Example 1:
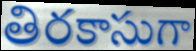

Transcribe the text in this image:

తిరకాసుగా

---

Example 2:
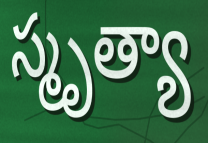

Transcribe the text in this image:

స్మృత్యా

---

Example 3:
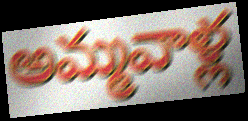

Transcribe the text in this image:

అమ్మవాళ్ల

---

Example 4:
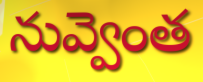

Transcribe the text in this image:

నువ్వెంత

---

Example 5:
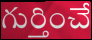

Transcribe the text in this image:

గుర్తించే